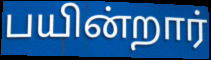
பயின்றார்